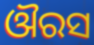
ଔରସ